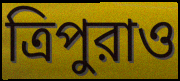
ত্রিপুরাও